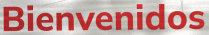
Bienvenidos